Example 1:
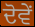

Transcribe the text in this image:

ਦੋਵੇਂ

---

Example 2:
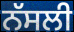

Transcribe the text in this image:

ਨੱਸਲੀ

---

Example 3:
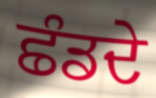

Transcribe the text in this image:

ਛੰਡਦੇ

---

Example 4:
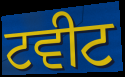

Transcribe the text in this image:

ਟਵੀਟ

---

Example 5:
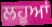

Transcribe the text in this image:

ਲਹੂਆਂ